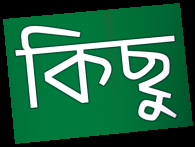
কিছু